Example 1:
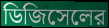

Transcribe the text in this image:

ডিজিসেলের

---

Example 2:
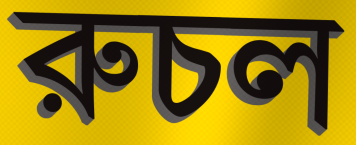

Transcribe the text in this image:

রুচল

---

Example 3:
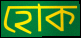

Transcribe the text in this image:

হোক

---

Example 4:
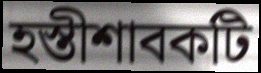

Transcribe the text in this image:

হস্তীশাবকটি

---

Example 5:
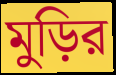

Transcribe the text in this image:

মুড়ির